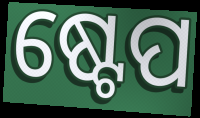
ଷ୍ଟେପ